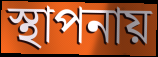
স্থাপনায়